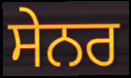
ਸੇਨਰ